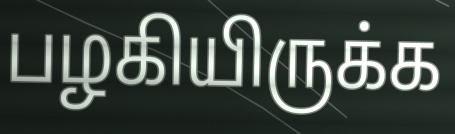
பழகியிருக்க